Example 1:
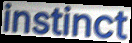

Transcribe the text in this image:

instinct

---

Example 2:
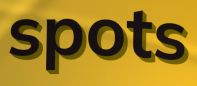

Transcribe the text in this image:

spots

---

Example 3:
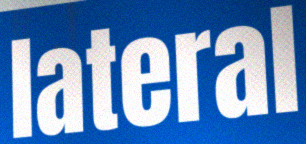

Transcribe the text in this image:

lateral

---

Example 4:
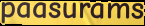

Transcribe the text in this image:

paasurams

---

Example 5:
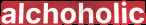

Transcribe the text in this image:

alchoholic